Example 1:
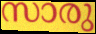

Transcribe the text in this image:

സാരു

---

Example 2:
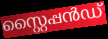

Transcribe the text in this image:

സ്റ്റൈപ്പൻഡ്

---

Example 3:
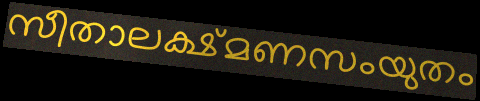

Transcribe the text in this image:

സീതാലക്ഷ്മണസംയുതം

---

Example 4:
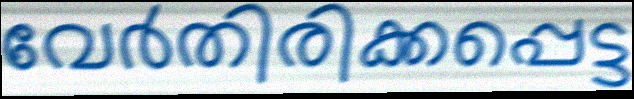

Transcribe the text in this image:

വേർതിരിക്കപ്പെട്ട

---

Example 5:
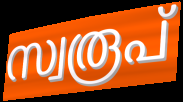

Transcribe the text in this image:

സ്വരൂപ്